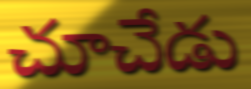
చూచేడు